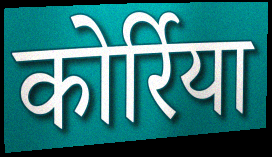
कोर्रिया